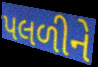
પલળીને